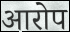
आरोप